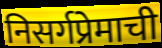
निसर्गप्रेमाची